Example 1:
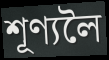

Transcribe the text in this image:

শূণ্যলৈ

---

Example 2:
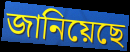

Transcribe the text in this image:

জানিয়েছে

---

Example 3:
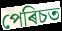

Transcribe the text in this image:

পেৰিচত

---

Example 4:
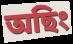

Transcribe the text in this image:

অছিং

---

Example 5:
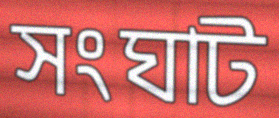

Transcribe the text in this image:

সংঘাট